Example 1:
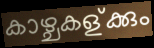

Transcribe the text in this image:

കാഴ്ചകള്ക്കും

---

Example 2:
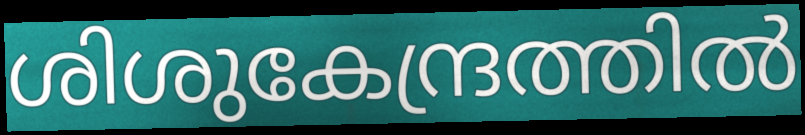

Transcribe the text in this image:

ശിശുകേന്ദ്രത്തിൽ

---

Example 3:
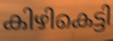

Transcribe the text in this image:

കിഴികെട്ടി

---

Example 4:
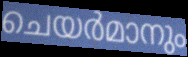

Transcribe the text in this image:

ചെയർമാനും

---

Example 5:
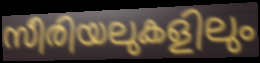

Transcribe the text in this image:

സീരിയലുകളിലും